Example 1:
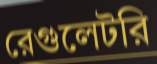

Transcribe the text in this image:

রেগুলেটরি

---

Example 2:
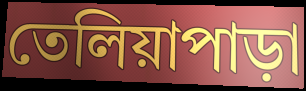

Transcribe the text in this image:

তেলিয়াপাড়া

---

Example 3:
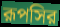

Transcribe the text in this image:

রূপসির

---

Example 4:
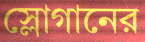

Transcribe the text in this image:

স্লোগানের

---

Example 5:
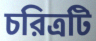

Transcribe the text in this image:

চরিত্রটি